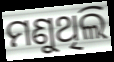
ମଣୁଥିଲି